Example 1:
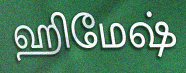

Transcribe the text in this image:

ஹிமேஷ்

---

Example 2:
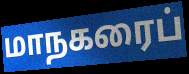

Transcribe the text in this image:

மாநகரைப்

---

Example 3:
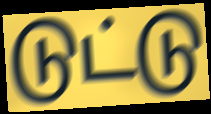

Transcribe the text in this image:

டுட்டு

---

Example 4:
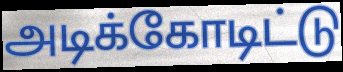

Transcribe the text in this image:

அடிக்கோடிட்டு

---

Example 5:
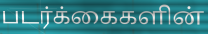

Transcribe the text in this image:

படர்க்கைகளின்